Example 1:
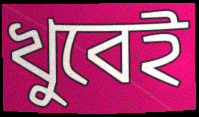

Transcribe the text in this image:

খুবেই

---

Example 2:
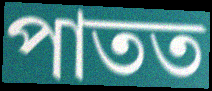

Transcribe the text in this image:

পাতত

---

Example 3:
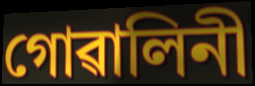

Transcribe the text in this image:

গোৱালিনী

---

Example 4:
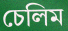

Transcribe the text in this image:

চেলিম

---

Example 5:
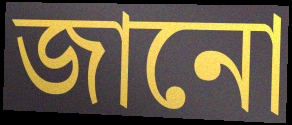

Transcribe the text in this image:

জানো